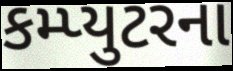
કમ્પ્યુટરના